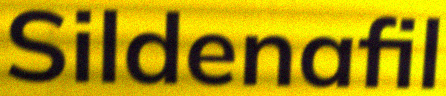
Sildenafil